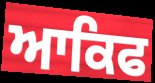
ਆਕਿਫ